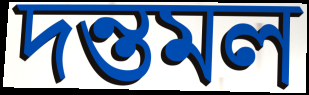
দন্তমল